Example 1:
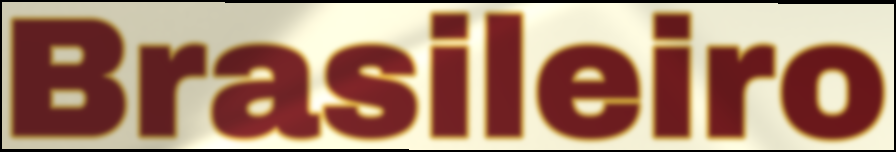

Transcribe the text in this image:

Brasileiro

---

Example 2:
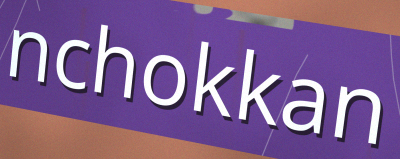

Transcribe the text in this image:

nchokkan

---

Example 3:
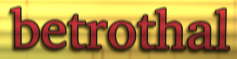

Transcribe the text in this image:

betrothal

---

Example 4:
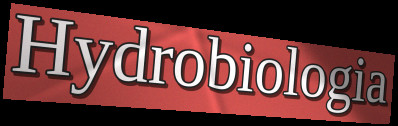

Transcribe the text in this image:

Hydrobiologia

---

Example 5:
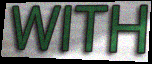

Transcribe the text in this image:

WITH